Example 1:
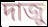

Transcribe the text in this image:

দাজু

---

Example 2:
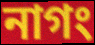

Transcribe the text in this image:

নাগং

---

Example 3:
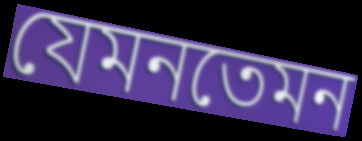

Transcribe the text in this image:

যেমনতেমন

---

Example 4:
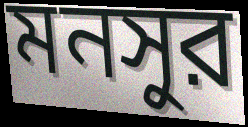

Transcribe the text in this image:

মনসুর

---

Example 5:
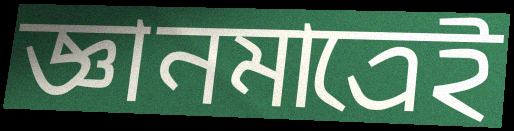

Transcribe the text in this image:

জ্ঞানমাত্রেই